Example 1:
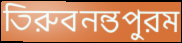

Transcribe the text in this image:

তিরুবনন্তপুরম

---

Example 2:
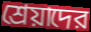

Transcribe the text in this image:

শ্রেয়াদের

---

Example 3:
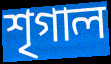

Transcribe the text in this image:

শৃগাল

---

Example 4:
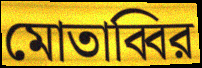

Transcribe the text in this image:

মোতাব্বির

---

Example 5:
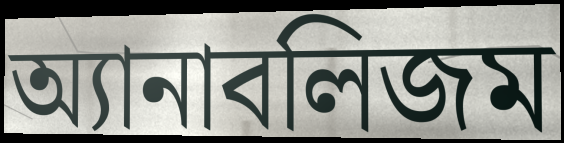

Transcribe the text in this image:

অ্যানাবলিজম